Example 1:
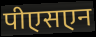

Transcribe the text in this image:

पीएसएन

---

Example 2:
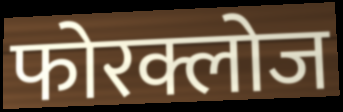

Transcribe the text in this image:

फोरक्लोज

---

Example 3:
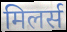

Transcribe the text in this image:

मिलर्स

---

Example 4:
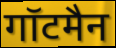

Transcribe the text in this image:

गॉटमैन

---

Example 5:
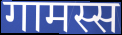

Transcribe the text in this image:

गामस्स